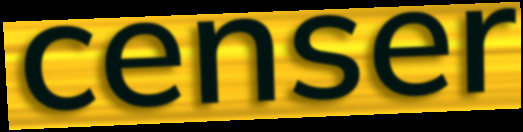
censer